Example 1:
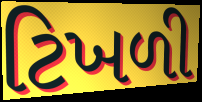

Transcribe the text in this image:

ટિખળી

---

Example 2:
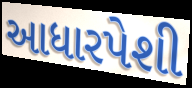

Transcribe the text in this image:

આધારપેશી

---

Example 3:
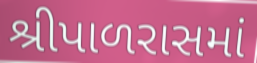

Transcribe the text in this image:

શ્રીપાળરાસમાં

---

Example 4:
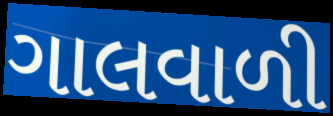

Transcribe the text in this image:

ગાલવાળી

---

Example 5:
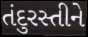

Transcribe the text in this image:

તંદુરસ્તીને